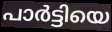
പാർട്ടിയെ